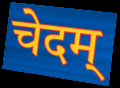
चेदम्